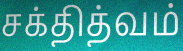
சக்தித்வம்